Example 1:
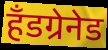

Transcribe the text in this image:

हँडग्रेनेड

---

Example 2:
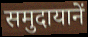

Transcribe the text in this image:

समुदायानें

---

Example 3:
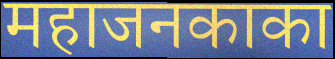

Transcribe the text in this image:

महाजनकाका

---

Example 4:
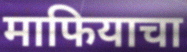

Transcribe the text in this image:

माफियाचा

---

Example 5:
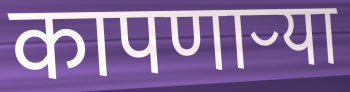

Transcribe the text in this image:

कापणाऱ्या